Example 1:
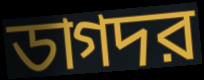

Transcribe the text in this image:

ডাগদর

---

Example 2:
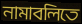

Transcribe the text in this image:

নামাবলিতে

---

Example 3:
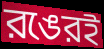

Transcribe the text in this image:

রঙেরই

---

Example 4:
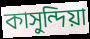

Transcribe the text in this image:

কাসুন্দিয়া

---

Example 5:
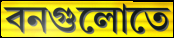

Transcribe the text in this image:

বনগুলোতে